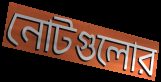
নোটগুলোর